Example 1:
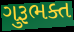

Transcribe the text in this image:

ગુરૂભક્ત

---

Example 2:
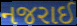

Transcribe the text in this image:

નજરાઈ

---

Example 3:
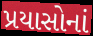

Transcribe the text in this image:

પ્રયાસોનાં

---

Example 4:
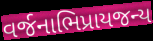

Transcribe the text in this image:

વર્જનાભિપ્રાયજન્ય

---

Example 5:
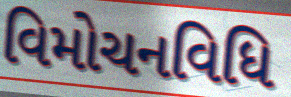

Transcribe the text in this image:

વિમોચનવિધિ